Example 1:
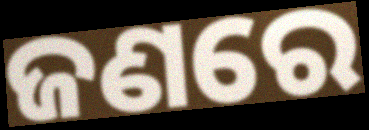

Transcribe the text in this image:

ଜଣରେ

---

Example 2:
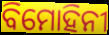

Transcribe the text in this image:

ବିମୋହିନୀ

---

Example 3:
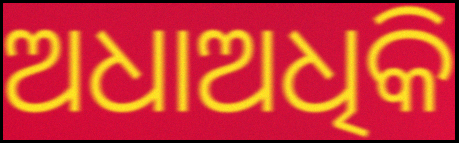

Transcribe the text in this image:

ଅଧାଅଧିକି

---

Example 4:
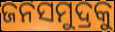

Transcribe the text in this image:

ଜନସମୁଦ୍ରକୁ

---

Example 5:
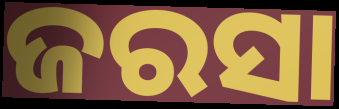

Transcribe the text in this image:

ଜରସା